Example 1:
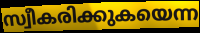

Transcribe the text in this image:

സ്വീകരിക്കുകയെന്ന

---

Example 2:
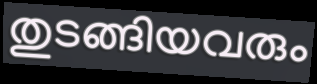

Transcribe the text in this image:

തുടങ്ങിയവരും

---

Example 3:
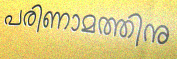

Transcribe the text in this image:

പരിണാമത്തിനു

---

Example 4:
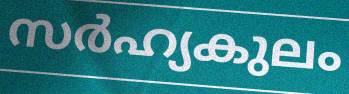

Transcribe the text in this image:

സർഹ്യകുലം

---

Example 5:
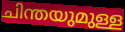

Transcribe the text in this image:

ചിന്തയുമുള്ള